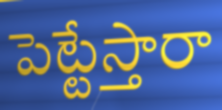
పెట్టేస్తారా